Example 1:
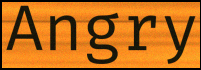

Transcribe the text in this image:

Angry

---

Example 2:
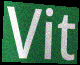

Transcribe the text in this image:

Vit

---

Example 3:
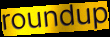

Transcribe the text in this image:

roundup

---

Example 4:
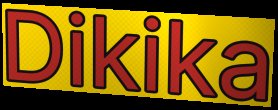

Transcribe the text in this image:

Dikika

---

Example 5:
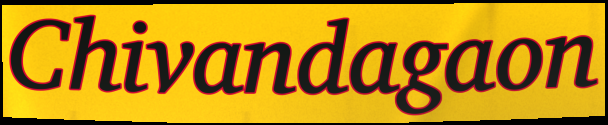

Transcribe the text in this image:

Chivandagaon